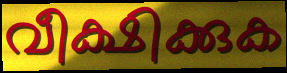
വീക്ഷിക്കുക